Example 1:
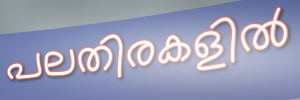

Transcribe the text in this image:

പലതിരകളിൽ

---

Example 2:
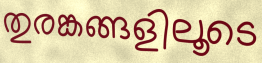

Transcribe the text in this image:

തുരങ്കങ്ങളിലൂടെ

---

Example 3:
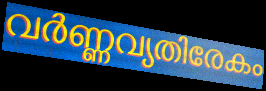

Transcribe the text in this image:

വർണ്ണവ്യതിരേകം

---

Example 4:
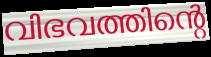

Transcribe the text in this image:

വിഭവത്തിന്റെ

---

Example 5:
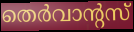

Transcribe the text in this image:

തെർവാന്റസ്